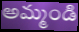
అమ్మండి